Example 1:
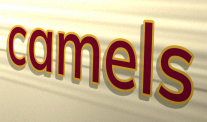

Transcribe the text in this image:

camels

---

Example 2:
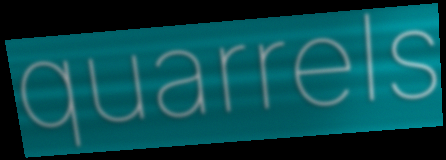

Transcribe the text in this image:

quarrels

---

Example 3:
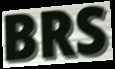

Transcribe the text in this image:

BRS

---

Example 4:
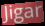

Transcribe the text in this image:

Jigar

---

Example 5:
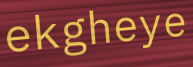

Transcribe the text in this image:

ekgheye